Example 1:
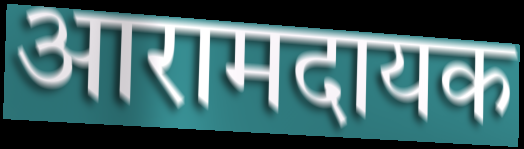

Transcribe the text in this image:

आरामदायक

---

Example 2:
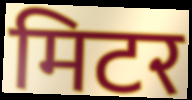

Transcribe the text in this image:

मिटर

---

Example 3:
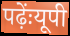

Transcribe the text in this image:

पढ़ेंःयूपी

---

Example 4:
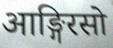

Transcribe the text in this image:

आङ्गिरसो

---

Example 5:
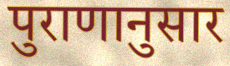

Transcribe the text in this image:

पुराणानुसार